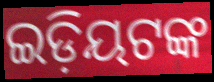
ଇଡ଼ିୟଟଙ୍କ